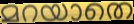
മറയാതെ